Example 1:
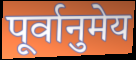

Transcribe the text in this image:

पूर्वानुमेय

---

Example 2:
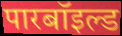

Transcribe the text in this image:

पारबॉइल्ड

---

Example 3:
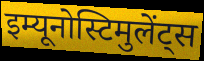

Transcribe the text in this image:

इम्यूनोस्टिमुलेंट्स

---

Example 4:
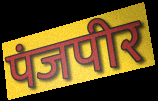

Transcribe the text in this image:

पंजपीर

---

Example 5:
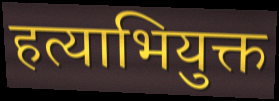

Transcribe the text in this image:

हत्याभियुक्त